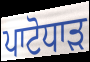
ਪਾਟੋਧਾੜ